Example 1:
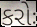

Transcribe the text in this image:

કરોઃ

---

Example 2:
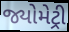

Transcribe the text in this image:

જ્યોમેટ્રી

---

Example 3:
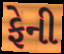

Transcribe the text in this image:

ફેની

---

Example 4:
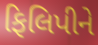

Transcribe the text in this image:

ફિલિપીને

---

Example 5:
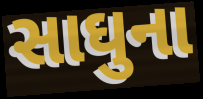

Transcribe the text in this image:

સાઘુના